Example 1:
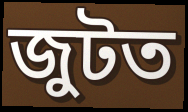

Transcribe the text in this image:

জুটত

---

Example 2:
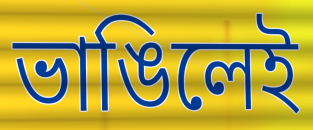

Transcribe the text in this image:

ভাঙিলেই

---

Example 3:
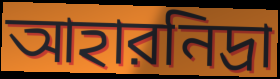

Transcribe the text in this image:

আহারনিদ্রা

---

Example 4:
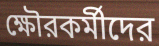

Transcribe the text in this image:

ক্ষৌরকর্মীদের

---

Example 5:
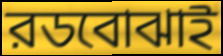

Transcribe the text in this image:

রডবোঝাই